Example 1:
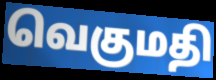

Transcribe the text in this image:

வெகுமதி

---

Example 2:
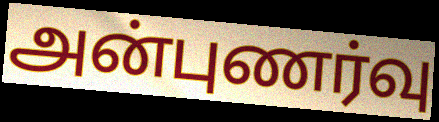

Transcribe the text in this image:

அன்புணர்வு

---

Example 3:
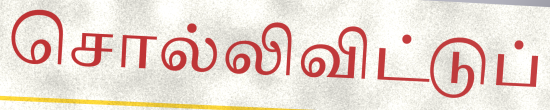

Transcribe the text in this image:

சொல்லிவிட்டுப்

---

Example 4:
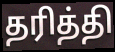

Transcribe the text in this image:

தரித்தி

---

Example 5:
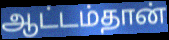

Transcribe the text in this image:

ஆட்டம்தான்